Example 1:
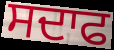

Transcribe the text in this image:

ਸਦਾਫ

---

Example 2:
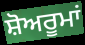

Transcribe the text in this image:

ਸ਼ੋਅਰੂਮਾਂ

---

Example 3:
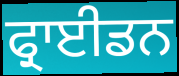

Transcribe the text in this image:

ਫ੍ਰਾਈਡਨ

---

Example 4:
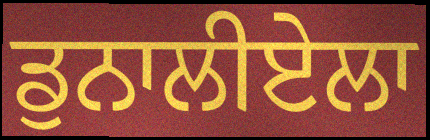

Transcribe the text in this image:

ਡੁਨਾਲੀਏਲਾ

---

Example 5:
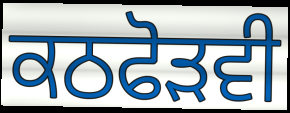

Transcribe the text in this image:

ਕਠਫੋੜਵੀ